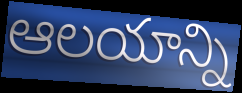
ఆలయాన్ని